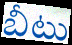
బీటు